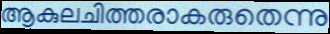
ആകുലചിത്തരാകരുതെന്നു